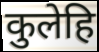
कुलेहि